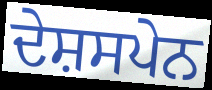
ਦੇਸ਼ਸਪੇਨ